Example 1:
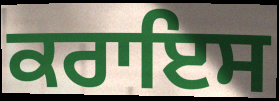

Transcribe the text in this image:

ਕਰਾਇਸ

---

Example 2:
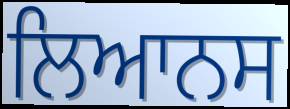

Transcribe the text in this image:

ਲਿਆਨਸ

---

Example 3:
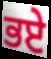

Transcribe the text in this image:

ਭਏ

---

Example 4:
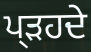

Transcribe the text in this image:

ਪ੍ੜਹਦੇ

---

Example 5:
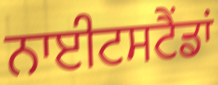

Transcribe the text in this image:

ਨਾਈਟਸਟੈਂਡਾਂ